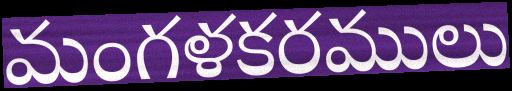
మంగళకరములు